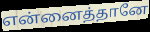
என்னைத்தானே